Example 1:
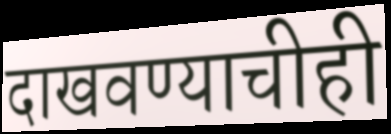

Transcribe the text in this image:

दाखवण्याचीही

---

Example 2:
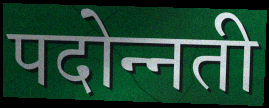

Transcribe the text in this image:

पदोन्‍नती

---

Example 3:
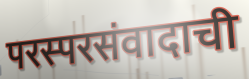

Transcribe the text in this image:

परस्परसंवादाची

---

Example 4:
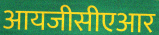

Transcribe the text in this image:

आयजीसीएआर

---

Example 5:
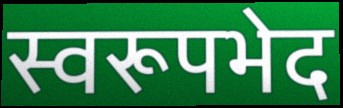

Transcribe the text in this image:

स्वरूपभेद